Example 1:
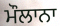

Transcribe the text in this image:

ਮੌਲਾਨਾ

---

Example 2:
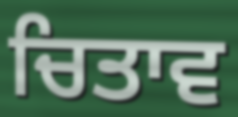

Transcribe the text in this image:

ਚਿਤਾਵ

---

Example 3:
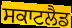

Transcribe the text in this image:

ਸਕਾਟਲੈਡ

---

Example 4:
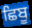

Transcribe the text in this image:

ਛਿਬੂ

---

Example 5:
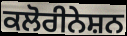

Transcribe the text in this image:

ਕਲੋਰੀਨੇਸ਼ਨ